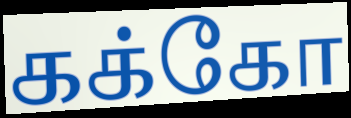
கக்கோ